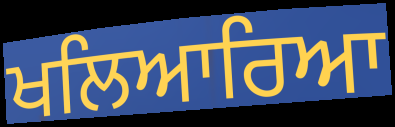
ਖਲਿਆਰਿਆ